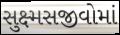
સુક્ષ્મસજીવોમાં